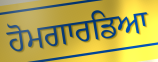
ਹੋਮਗਾਰਡਿਆ